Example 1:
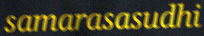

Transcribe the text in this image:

samarasasudhi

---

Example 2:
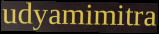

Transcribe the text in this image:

udyamimitra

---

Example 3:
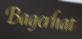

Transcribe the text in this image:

Bagerhat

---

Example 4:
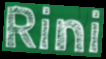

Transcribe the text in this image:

Rini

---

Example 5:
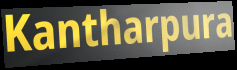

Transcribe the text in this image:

Kantharpura